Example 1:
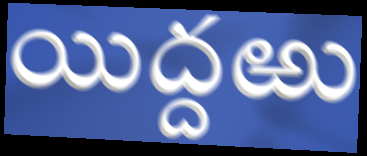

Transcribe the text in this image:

యిద్దఱు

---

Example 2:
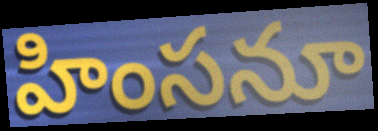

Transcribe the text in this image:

హింసనూ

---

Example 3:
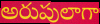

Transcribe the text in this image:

అరుపులాగా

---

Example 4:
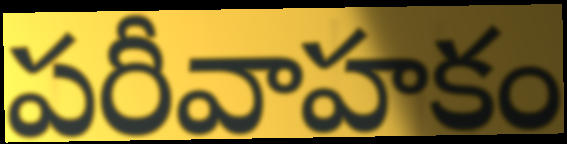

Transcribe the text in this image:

పరీవాహకం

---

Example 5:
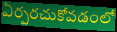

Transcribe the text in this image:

ఏర్పరచుకోవడంలో